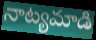
నాట్యమాడి